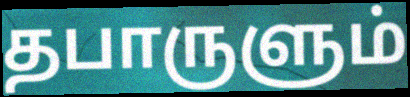
தபாருளும்